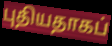
புதியதாகப்